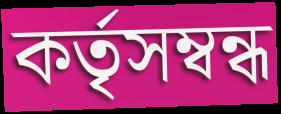
কর্তৃসম্বন্ধ